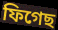
ফিগেছ